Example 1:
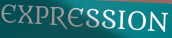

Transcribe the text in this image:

EXPRESSION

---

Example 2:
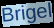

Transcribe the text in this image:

Brigel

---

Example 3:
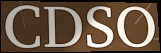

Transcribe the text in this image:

CDSO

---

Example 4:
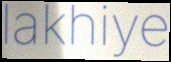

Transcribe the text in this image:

lakhiye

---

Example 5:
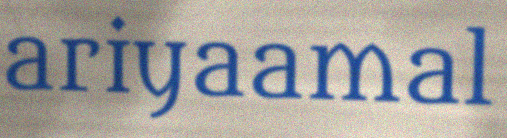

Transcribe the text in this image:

ariyaamal